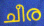
ചീര